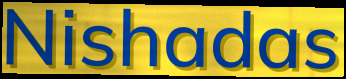
Nishadas